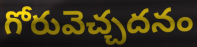
గోరువెచ్చదనం